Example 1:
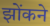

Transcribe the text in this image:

झोंकने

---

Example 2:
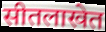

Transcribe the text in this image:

सीतलाखेत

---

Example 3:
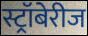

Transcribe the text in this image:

स्ट्रॉबेरीज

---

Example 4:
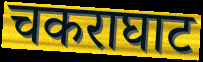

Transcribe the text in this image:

चकराघाट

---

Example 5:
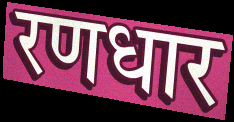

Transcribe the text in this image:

रणधार